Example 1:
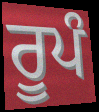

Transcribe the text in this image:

ਰੂਪੰ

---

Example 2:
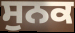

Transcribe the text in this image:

ਸੁਨਕ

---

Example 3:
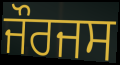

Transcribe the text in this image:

ਜੌਰਜਸ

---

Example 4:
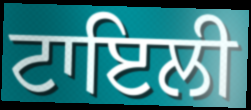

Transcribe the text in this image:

ਟਾਇਲੀ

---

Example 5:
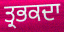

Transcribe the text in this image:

ਤ੍ਰਭਕਦਾ